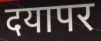
दयापर